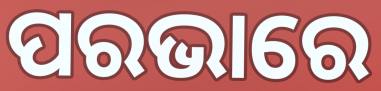
ପରଭାରେ